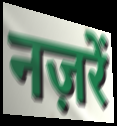
नज़रें